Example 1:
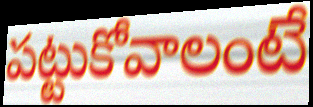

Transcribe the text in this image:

పట్టుకోవాలంటే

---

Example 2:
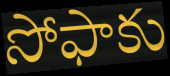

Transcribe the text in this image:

సోఫాకు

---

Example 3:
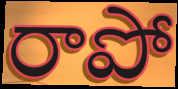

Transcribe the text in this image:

రాపో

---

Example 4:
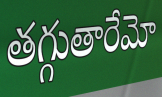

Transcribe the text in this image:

తగ్గుతారేమో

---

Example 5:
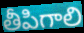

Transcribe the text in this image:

తీపిగాలి